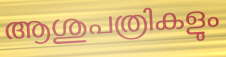
ആശുപത്രികളും